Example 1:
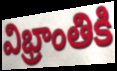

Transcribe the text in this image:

విభ్రాంతికి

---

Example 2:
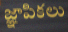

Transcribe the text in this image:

జ్ఞాపికలు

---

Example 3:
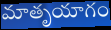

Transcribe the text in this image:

మాతృయాగం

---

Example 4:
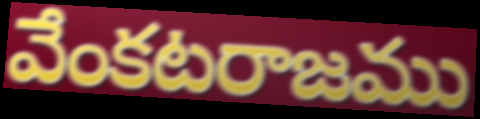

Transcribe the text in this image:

వేంకటరాజము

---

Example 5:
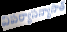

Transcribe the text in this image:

విపర్యాసన్యాసాత్